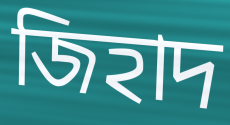
জিহাদ